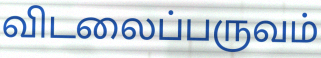
விடலைப்பருவம்